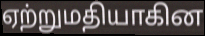
ஏற்றுமதியாகின